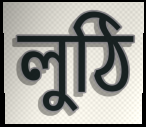
লুঠি